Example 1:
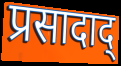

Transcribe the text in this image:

प्रसादाद्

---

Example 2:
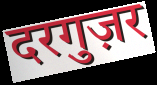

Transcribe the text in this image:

दरगुज़र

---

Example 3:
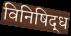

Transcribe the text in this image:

विनिषिद्ध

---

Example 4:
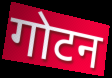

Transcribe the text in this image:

गोटन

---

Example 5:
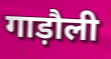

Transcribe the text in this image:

गाड़ौली